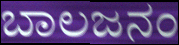
ಬಾಲಜನಂ